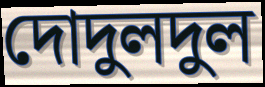
দোদুলদুল